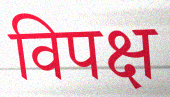
विपक्ष